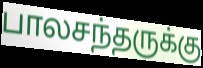
பாலசந்தருக்கு